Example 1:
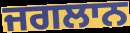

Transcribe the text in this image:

ਜਗਲਾਨ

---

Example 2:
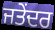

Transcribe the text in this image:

ਜਤੇਂਦਰ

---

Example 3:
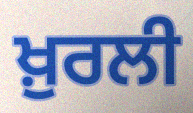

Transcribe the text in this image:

ਖ਼ੁਰਲੀ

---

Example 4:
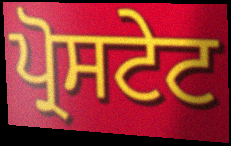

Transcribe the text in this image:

ਪ੍ਰੋਸਟੇਟ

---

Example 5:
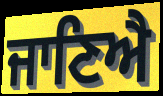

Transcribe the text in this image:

ਜਾਣਿਐ